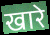
खारे